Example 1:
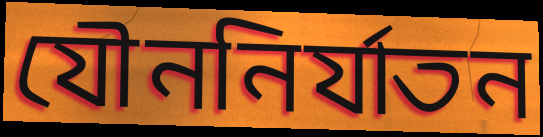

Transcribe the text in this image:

যৌননির্যাতন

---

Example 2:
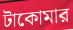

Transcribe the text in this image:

টাকোমার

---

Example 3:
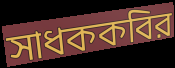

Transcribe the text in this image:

সাধককবির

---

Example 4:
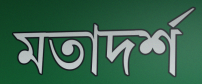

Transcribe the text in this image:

মতাদর্শ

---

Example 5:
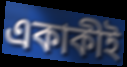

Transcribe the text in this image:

একাকীই